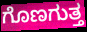
ಗೊಣಗುತ್ತ